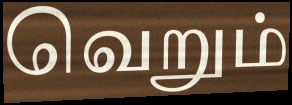
வெறும்